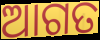
ଆଗତ